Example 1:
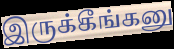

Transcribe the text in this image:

இருக்கீங்கனு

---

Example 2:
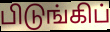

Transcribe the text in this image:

பிடுங்கிப்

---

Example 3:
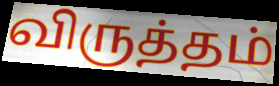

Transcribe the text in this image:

விருத்தம்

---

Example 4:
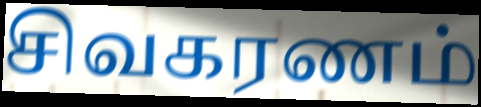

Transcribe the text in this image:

சிவகரணம்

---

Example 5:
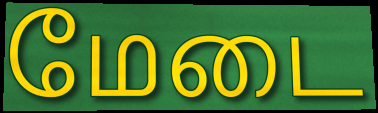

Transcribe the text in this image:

மேடை